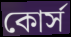
কোর্স